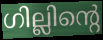
ഗില്ലിന്റെ